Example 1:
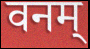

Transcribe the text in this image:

वनम्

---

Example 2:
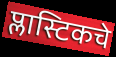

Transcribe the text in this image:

प्लास्टिकचे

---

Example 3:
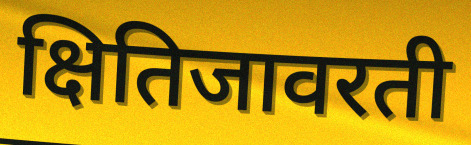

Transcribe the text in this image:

क्षितिजावरती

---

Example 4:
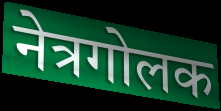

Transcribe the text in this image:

नेत्रगोलक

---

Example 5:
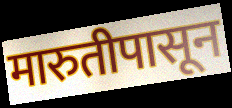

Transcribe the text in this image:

मारुतीपासून